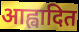
आह्वादित